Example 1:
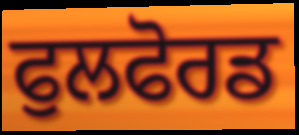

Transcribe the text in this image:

ਫੁਲਫੋਰਡ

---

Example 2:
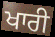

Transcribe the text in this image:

ਖਾਰੀ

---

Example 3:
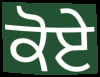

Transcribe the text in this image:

ਕੋਏ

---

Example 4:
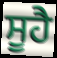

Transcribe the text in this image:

ਸੂਹੈ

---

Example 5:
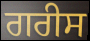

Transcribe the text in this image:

ਗਰੀਸ